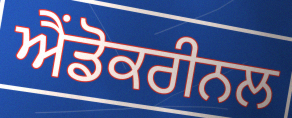
ਐਂਡੋਕਰੀਨਲ